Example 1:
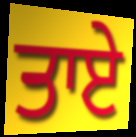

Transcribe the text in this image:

ਤਾਏ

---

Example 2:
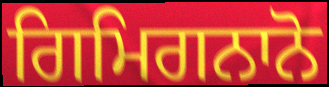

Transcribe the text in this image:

ਗਿਮਿਗਨਾਨੋ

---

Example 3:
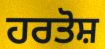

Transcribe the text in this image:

ਹਰਤੋਸ਼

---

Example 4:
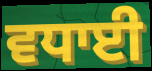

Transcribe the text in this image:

ਵਧਾਈ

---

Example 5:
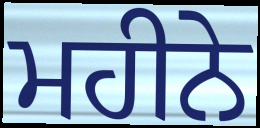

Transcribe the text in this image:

ਮਹੀਨੇ